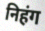
निहंग